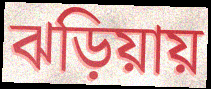
ঝড়িয়ায়